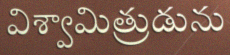
విశ్వామిత్రుడును